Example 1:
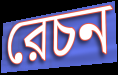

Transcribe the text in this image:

রেচন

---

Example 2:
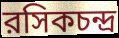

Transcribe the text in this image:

রসিকচন্দ্র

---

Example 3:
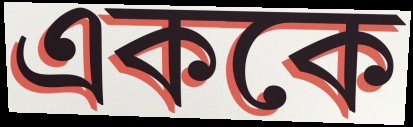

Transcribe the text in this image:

এককে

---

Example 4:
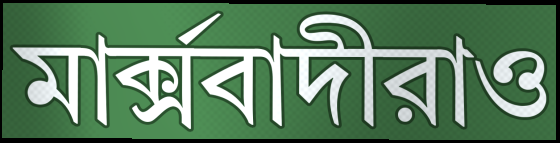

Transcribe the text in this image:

মার্ক্সবাদীরাও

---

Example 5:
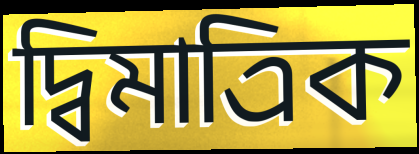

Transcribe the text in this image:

দ্বিমাত্রিক